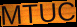
MTUC